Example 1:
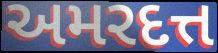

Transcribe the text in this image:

અમરદત્ત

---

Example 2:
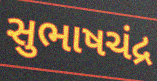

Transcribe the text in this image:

સુભાષચંદ્ર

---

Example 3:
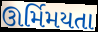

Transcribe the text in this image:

ઊર્મિમયતા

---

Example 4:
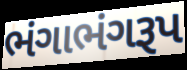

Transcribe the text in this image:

ભંગાભંગરૂપ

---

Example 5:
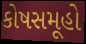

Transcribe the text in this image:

કોષસમૂહો